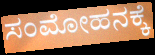
ಸಂಮೋಹನಕ್ಕೆ